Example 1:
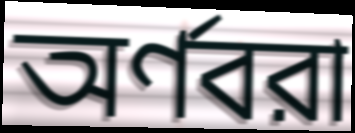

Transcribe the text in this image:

অর্ণবরা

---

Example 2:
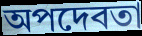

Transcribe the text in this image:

অপদেবতা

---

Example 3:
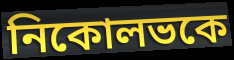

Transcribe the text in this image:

নিকোলভকে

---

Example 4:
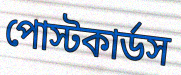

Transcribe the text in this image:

পোস্টকার্ডস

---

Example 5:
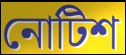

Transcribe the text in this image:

নোটিশ